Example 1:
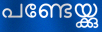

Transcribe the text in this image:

പണ്ടേയ്ക്കു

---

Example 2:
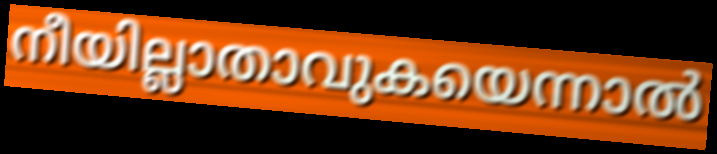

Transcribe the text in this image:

നീയില്ലാതാവുകയെന്നാൽ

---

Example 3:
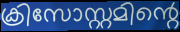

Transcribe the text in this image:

ക്രിസോസ്റ്റമിന്റെ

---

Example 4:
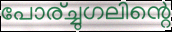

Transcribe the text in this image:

പോര്ച്ചുഗലിന്റെ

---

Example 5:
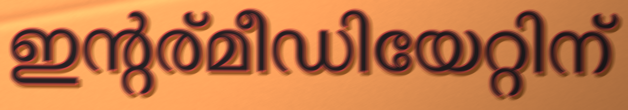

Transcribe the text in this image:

ഇന്റര്മീഡിയേറ്റിന്